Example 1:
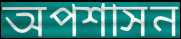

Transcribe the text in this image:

অপশাসন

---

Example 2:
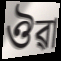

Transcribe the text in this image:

ঔৱা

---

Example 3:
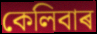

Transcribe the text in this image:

কেলিবাৰ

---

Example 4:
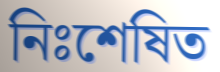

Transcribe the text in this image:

নিঃশেষিত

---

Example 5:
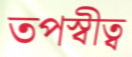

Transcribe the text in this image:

তপস্বীত্ব